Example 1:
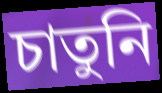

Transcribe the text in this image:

চাতুনি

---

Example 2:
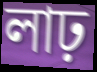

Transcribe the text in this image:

লাঢ়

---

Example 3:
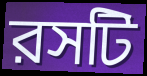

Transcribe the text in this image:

রসটি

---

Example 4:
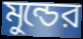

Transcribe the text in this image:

মুন্ডের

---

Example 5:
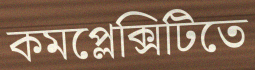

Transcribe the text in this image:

কমপ্লেক্সিটিতে